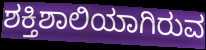
ಶಕ್ತಿಶಾಲಿಯಾಗಿರುವ